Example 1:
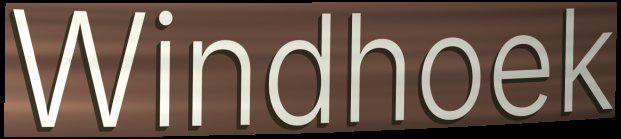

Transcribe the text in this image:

Windhoek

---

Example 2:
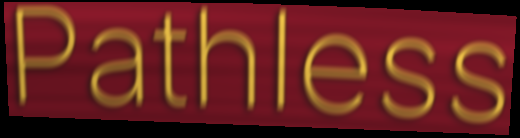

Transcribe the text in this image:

Pathless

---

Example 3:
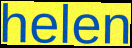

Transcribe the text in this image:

helen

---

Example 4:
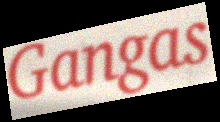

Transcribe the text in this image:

Gangas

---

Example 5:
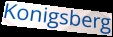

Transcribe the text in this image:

Konigsberg